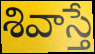
శివాస్తే